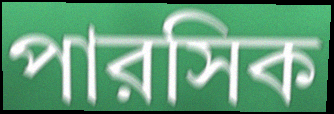
পারসিক